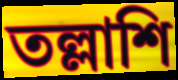
তল্লাশি